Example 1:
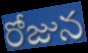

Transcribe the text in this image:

రోజున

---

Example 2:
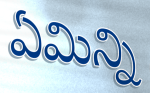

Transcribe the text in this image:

ఏమిన్ని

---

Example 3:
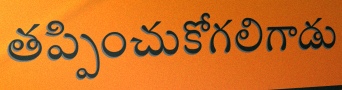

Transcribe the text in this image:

తప్పించుకోగలిగాడు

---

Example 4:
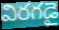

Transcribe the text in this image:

విరగడై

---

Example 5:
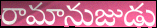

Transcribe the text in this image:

రామానుజుడు